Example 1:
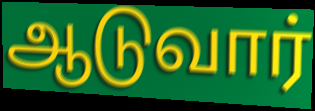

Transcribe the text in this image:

ஆடுவார்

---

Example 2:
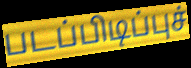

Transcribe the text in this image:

படப்பிடிப்புச்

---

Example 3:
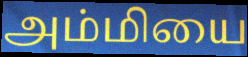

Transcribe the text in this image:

அம்மியை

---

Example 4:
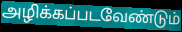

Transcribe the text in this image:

அழிக்கப்படவேண்டும்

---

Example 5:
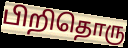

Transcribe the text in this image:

பிறிதொரு